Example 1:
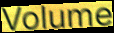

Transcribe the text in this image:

Volume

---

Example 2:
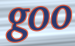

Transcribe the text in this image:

goo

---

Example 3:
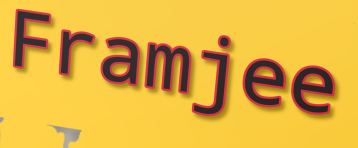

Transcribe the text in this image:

Framjee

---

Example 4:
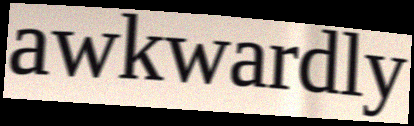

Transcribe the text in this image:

awkwardly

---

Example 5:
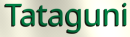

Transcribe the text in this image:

Tataguni